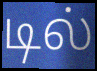
டில்